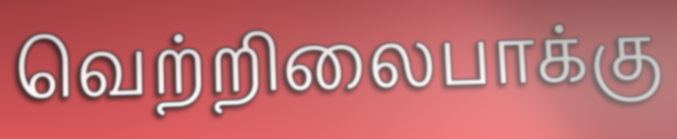
வெற்றிலைபாக்கு